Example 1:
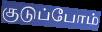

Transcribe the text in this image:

குடுப்போம்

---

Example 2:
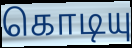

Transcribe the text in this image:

கொடியு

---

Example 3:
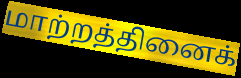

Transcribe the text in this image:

மாற்றத்தினைக்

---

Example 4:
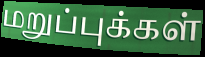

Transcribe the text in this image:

மறுப்புக்கள்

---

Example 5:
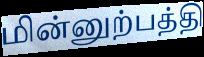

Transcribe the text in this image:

மின்னுற்பத்தி